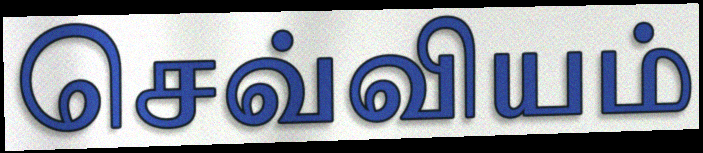
செவ்வியம்